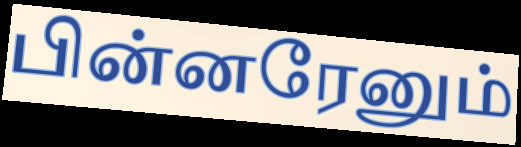
பின்னரேனும்